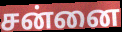
சன்னை